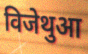
विजेथुआ